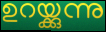
ഉറയ്ക്കുന്നു